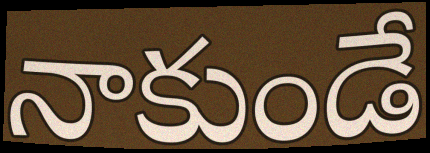
నాకుండే